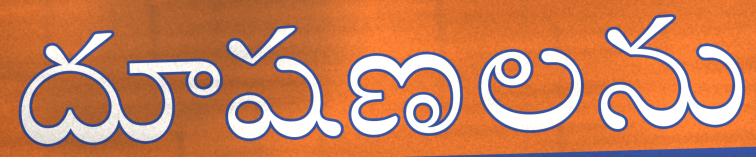
దూషణలను